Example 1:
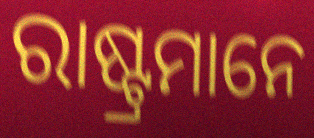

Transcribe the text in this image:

ରାଷ୍ଟ୍ରମାନେ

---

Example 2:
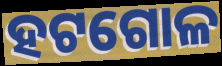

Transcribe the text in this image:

ହଟଗୋଳ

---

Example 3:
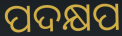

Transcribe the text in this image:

ପଦକ୍ଷପ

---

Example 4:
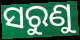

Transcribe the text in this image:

ସରୁଣୁ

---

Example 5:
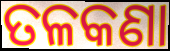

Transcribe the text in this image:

ତଳକଣା